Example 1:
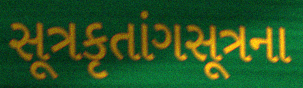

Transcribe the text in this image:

સૂત્રકૃતાંગસૂત્રના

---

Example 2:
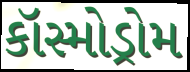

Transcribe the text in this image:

કૉસ્મોડ્રોમ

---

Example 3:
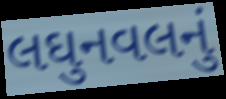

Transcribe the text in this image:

લઘુનવલનું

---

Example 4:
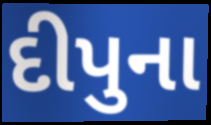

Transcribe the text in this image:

દીપુના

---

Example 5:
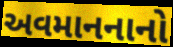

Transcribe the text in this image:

અવમાનનાનો